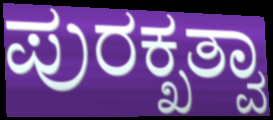
ಪುರಕ್ಖತ್ವಾ